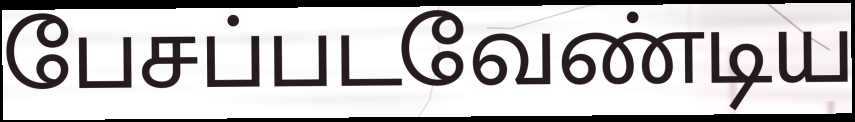
பேசப்படவேண்டிய